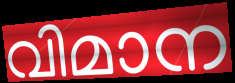
വിമാന